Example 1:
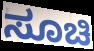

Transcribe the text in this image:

ಸೂಚಿ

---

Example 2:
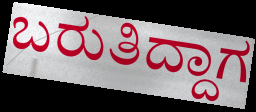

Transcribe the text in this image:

ಬರುತಿದ್ದಾಗ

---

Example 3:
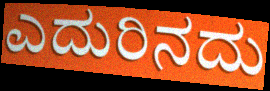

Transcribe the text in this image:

ಎದುರಿನದು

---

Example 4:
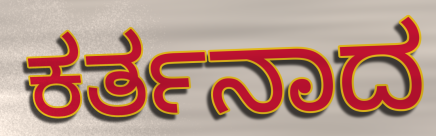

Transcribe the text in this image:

ಕರ್ತನಾದ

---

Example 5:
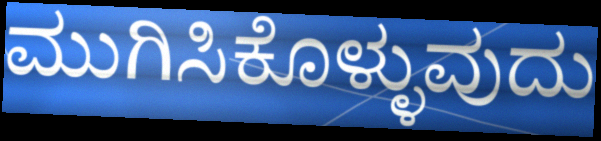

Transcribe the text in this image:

ಮುಗಿಸಿಕೊಳ್ಳುವುದು